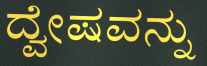
ದ್ವೇಷವನ್ನು